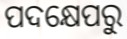
ପଦକ୍ଷେପରୁ